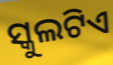
ସ୍କୁଲଟିଏ